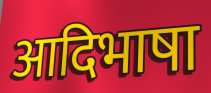
आदिभाषा